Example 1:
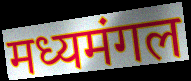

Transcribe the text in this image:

मध्यमंगल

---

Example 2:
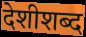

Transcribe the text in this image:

देशीशब्द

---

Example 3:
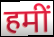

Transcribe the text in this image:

हमीं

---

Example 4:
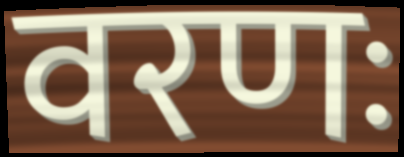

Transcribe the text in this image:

वरणः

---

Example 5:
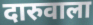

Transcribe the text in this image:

दारुवाला